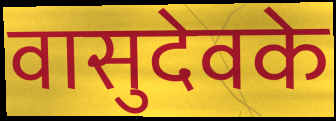
वासुदेवके